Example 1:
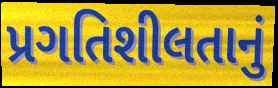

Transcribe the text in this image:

પ્રગતિશીલતાનું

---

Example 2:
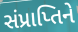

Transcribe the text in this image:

સંપ્રાપ્તિને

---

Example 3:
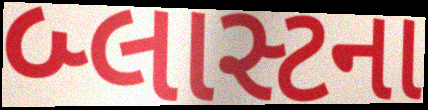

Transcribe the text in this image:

બ્લાસ્ટના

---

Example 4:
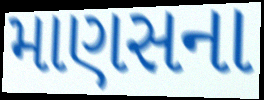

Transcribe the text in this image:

માણસના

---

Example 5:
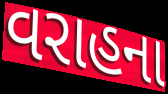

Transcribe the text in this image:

વરાહના